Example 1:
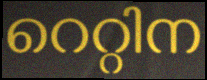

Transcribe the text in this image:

റെറ്റിന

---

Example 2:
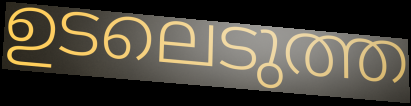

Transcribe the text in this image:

ഉടലെടുത്ത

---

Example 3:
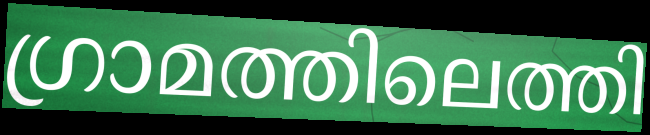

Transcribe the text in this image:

ഗ്രാമത്തിലെത്തി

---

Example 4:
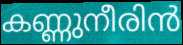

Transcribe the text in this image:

കണ്ണുനീരിൻ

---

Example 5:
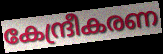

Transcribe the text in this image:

കേന്ദ്രീകരണ